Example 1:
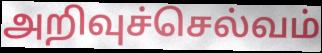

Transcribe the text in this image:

அறிவுச்செல்வம்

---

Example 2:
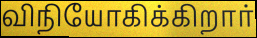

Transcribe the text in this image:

விநியோகிக்கிறார்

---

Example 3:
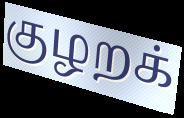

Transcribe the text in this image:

குழறக்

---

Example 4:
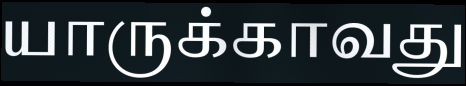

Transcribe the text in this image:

யாருக்காவது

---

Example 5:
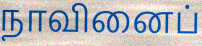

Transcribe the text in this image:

நாவினைப்